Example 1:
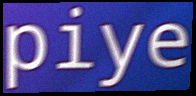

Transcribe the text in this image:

piye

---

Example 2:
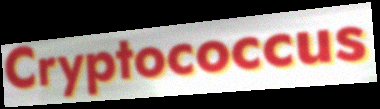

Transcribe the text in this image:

Cryptococcus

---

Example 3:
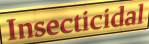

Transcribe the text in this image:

Insecticidal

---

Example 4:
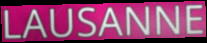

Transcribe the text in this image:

LAUSANNE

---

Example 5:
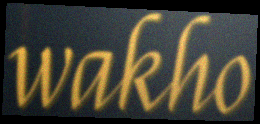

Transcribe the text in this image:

wakho